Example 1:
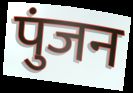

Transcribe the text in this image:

पुंजन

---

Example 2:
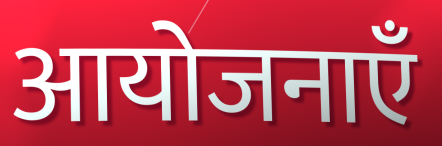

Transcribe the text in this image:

आयोजनाएँ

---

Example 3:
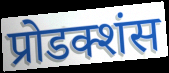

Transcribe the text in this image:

प्रोडक्शंस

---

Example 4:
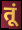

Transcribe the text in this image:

तूं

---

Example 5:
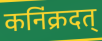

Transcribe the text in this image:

कनि॑क्रदत्